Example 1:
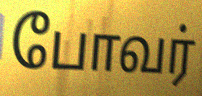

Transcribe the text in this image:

போவர்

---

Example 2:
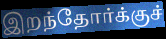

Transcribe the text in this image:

இறந்தோர்க்குச்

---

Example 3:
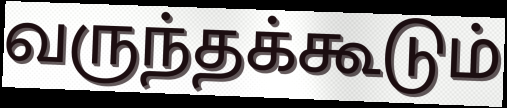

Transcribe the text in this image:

வருந்தக்கூடும்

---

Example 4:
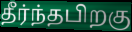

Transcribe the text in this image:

தீர்ந்தபிறகு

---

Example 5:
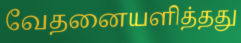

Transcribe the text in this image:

வேதனையளித்தது